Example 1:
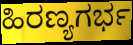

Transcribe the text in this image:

ಹಿರಣ್ಯಗರ್ಭ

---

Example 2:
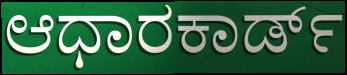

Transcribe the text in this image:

ಆಧಾರಕಾರ್ಡ್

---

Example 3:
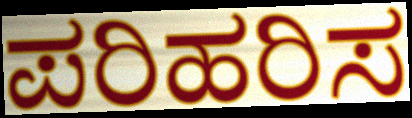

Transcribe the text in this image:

ಪರಿಹರಿಸ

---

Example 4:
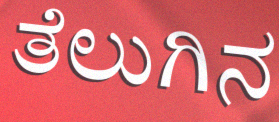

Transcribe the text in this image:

ತೆಲುಗಿನ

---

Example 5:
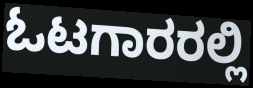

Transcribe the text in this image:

ಓಟಗಾರರಲ್ಲಿ